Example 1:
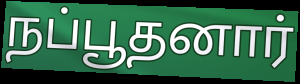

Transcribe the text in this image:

நப்பூதனார்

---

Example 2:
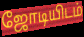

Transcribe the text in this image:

ஜோடியிடம்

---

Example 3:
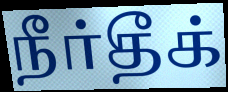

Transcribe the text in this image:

நீர்தீக்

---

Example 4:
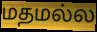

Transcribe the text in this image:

மதமல்ல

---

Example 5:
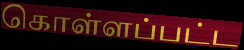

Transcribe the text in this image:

கொள்ளப்பட்ட